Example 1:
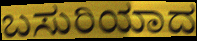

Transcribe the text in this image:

ಬಸುರಿಯಾದ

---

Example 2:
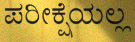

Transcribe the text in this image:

ಪರೀಕ್ಷೆಯಲ್ಲ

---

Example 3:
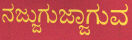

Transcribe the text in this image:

ನಜ್ಜುಗುಜ್ಜಾಗುವ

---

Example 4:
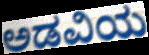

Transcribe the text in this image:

ಅಡವಿಯ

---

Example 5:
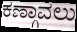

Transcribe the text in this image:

ಕಣ್ಗಾವಲು